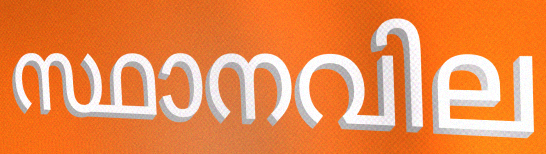
സ്ഥാനവില